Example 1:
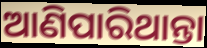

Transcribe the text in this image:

ଆଣିପାରିଥାନ୍ତା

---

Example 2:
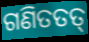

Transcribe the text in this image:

ଗଣିତତତ୍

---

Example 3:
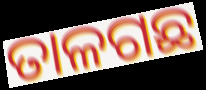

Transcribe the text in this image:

ତାଳଗଛ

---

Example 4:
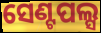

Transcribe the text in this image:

ସେଣ୍ଟପଲ୍ସ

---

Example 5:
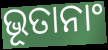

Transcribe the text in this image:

ଭୂତାନାଂ